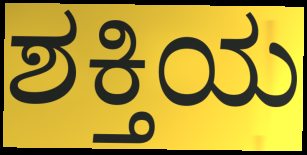
ಶಕ್ತಿಯ